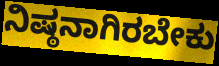
ನಿಷ್ಠನಾಗಿರಬೇಕು